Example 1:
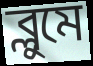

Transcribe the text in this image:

ব্লুমে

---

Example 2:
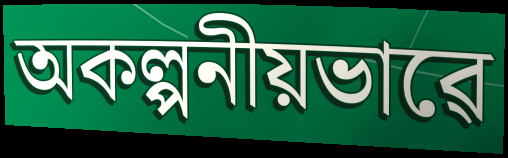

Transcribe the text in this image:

অকল্পনীয়ভাৱে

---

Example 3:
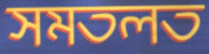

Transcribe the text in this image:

সমতলত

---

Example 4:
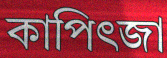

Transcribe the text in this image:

কাপিৎজা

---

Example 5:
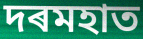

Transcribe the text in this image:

দৰমহাত